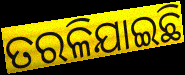
ତରଳିଯାଇଛି